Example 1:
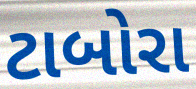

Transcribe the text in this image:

ટાબોરા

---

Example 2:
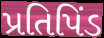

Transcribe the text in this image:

પ્રતિપિંડ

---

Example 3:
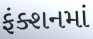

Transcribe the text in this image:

ફંક્શનમાં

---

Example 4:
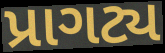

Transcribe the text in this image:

પ્રાગટ્ય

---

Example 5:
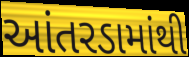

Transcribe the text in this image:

આંતરડામાંથી